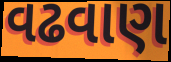
વઢવાણ